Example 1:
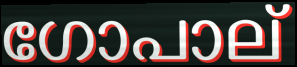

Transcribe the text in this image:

ഗോപാല്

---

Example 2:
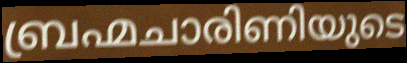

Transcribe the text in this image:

ബ്രഹ്മചാരിണിയുടെ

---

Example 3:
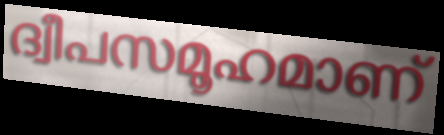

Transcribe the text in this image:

ദ്വീപസമൂഹമാണ്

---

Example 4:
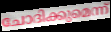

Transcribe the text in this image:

ചോദിക്കുമെന്ന്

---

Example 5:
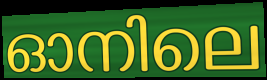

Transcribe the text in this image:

ഓനിലെ